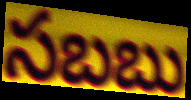
సబబు